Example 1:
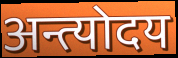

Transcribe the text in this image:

अन्त्योदय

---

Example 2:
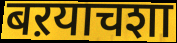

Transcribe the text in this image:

बऱयाचशा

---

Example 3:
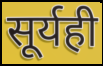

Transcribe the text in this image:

सूर्यही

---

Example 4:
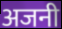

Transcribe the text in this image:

अजनी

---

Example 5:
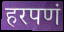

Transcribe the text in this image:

हरपणं